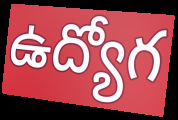
ఉద్యోగ